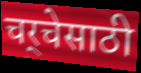
चर्चेसाठी